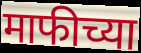
माफीच्या